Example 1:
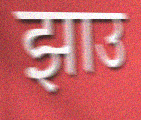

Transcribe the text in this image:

झाउ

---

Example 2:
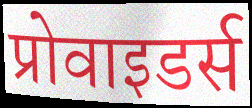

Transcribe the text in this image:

प्रोवाइडर्स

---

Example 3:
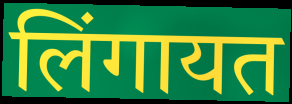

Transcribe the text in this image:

लिंगायत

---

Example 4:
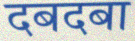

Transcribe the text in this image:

दबदबा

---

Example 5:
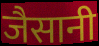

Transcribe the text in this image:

जैसानी